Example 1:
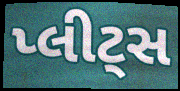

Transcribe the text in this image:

પ્લીટ્સ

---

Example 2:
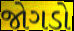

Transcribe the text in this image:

જોગડો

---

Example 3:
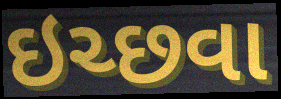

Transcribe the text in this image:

ઇચ્છવા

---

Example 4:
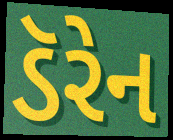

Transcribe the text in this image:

ડૅરેન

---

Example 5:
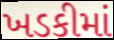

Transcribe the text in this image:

ખડકીમાં